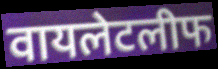
वायलेटलीफ